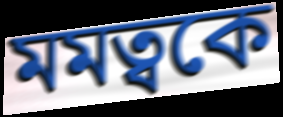
মমত্বকে